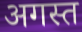
अगस्त